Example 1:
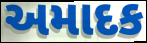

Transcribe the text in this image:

અમાદક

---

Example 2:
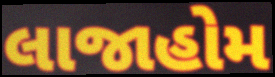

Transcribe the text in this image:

લાજાહોમ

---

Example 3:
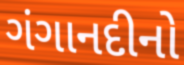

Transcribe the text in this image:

ગંગાનદીનો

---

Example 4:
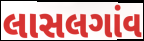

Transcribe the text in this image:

લાસલગાંવ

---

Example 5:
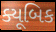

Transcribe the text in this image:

ક્યૂબિક